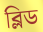
ব্লিড